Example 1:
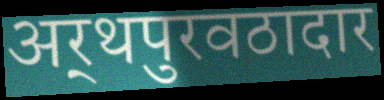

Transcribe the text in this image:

अर्थपुरवठादार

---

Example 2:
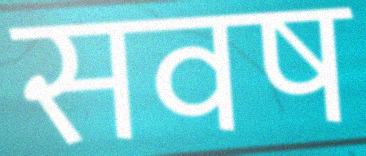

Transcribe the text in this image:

सवष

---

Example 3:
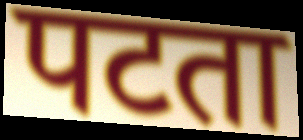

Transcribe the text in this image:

पटता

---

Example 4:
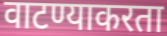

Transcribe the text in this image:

वाटण्याकरता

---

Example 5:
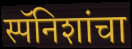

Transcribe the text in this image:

स्पॅनिशांचा